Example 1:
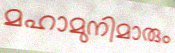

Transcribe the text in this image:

മഹാമുനിമാരും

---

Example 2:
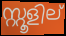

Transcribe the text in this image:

സ്റ്റൂളില്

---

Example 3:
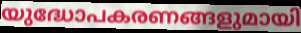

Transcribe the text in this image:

യുദ്ധോപകരണങ്ങളുമായി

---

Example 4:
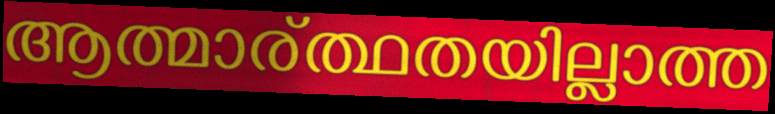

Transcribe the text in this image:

ആത്മാര്ത്ഥതയില്ലാത്ത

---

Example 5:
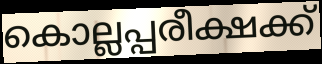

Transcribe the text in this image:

കൊല്ലപ്പരീക്ഷക്ക്